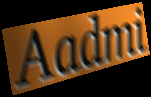
Aadmi